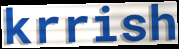
krrish